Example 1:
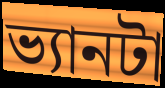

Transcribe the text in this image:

ভ্যানটা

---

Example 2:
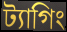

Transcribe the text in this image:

ট্যাগিং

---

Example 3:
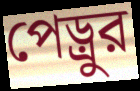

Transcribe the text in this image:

পেড়্রুর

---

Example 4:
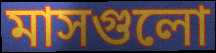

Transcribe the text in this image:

মাসগুলো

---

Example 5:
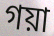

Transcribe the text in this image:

গয়া